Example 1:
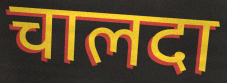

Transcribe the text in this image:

चालदा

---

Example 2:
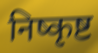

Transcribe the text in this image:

निष्कृष्ट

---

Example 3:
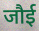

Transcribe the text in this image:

जौई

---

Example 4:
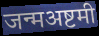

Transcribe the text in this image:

जन्मअष्टमी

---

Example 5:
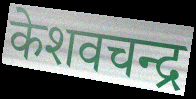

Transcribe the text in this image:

केशवचन्द्र